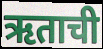
ऋताची